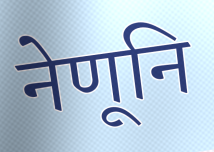
नेणूनि